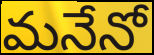
మనేనో